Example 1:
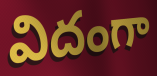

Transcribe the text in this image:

విదంగా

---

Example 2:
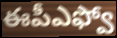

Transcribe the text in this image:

ఈపీఎఫ్వో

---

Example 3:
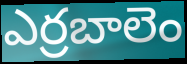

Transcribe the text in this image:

ఎర్రబాలెం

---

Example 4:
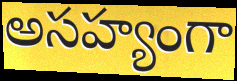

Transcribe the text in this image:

అసహ్యంగా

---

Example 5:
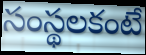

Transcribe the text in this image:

సంస్థలకంటే